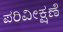
ಪರಿವೀಕ್ಷಣೆ